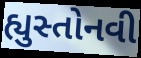
હ્યુસ્તોનવી